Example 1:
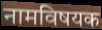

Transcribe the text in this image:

नामविषयक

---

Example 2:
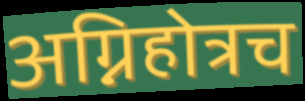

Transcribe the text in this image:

अग्निहोत्रच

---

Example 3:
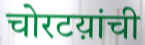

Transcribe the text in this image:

चोरटय़ांची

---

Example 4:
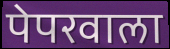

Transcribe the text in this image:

पेपरवाला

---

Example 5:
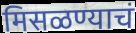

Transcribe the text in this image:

मिसळण्याचं